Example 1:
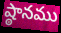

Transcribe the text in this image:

ష్ఠానము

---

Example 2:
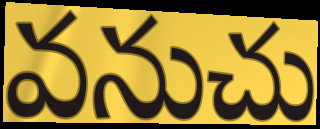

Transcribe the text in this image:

వనుచు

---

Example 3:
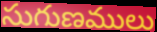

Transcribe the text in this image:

సుగుణములు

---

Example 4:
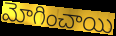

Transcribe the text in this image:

మోగించాయి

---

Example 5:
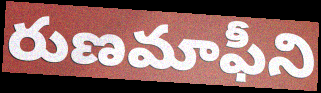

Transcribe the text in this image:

రుణమాఫీని